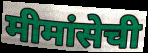
मीमांसेची